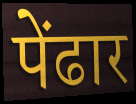
पेंढार